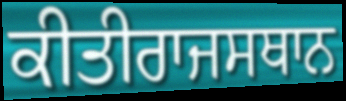
ਕੀਤੀਰਾਜਸਥਾਨ